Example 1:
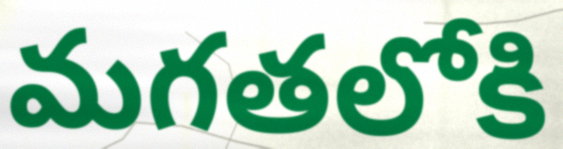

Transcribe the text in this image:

మగతలోకి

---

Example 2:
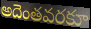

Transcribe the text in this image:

అదెంతవరకూ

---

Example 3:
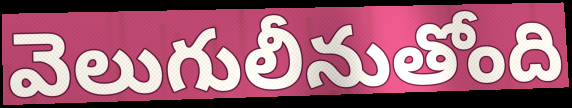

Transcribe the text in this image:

వెలుగులీనుతోంది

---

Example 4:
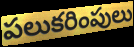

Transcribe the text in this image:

పలుకరింపులు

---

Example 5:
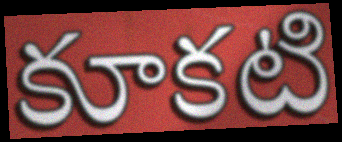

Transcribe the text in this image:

కూకటి